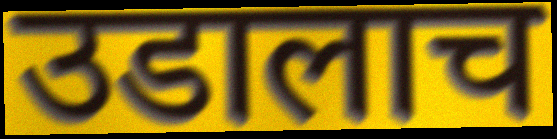
उडालाच